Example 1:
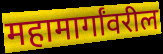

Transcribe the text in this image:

महामार्गांवरील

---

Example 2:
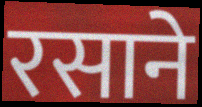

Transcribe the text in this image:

रसाने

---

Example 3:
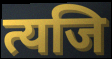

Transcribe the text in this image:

त्यजि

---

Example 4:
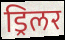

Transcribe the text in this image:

ड्रिलर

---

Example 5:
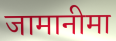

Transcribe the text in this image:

जामानीमा